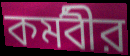
কর্মবীর